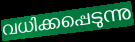
വധിക്കപ്പെടുന്നു